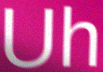
Uh